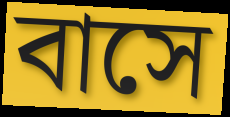
বাসে